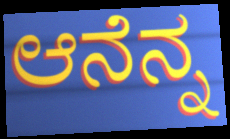
ಆನೆನ್ನ